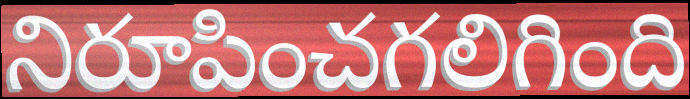
నిరూపించగలిగింది